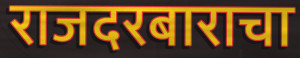
राजदरबाराचा